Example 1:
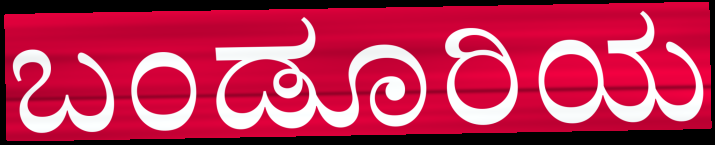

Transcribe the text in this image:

ಬಂಡೂರಿಯ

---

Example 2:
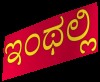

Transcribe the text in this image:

ಇಂಥಲ್ಲಿ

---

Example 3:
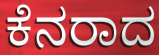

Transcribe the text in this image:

ಕೆನರಾದ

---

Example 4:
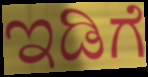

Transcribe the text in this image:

ಇಡಿಗೆ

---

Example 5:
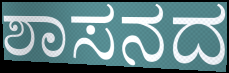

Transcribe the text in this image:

ಶಾಸನದ